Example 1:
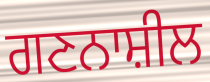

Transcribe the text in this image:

ਗਣਨਾਸ਼ੀਲ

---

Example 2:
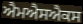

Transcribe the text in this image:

ਐਮਐਸਐਕਸ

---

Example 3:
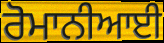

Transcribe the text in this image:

ਰੋਮਾਨੀਆਈ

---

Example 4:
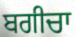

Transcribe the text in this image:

ਬਗੀਚਾ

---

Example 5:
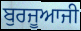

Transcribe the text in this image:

ਬੁਰਜੂਆਜੀ